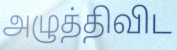
அழுத்திவிட